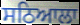
ਸਠਿਆਲਾ